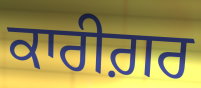
ਕਾਰੀਗ਼ਰ